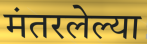
मंतरलेल्या